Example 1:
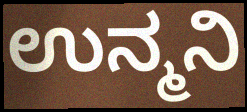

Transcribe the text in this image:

ಉನ್ಮನಿ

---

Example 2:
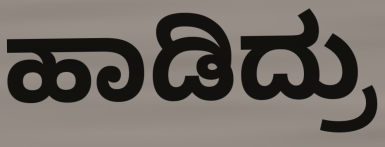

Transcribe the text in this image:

ಹಾಡಿದ್ರು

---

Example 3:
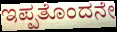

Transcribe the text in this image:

ಇಪ್ಪತೊಂದನೇ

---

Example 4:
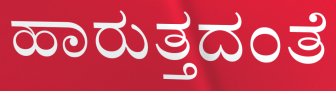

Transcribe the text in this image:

ಹಾರುತ್ತದಂತೆ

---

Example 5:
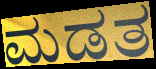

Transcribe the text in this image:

ಮಡತ